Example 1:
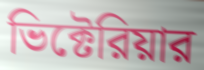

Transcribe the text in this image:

ভিক্টেরিয়ার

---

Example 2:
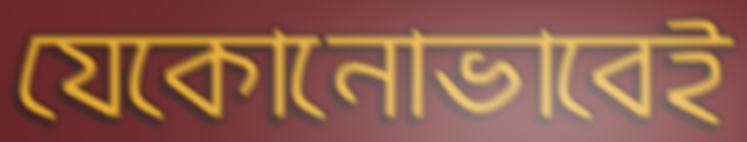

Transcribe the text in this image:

যেকোনোভাবেই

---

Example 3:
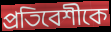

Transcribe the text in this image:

প্রতিবেশীকে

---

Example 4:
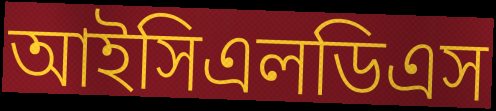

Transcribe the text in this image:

আইসিএলডিএস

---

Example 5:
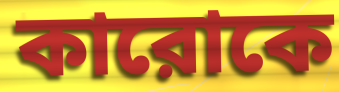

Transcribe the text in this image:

কারোকে